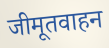
जीमूतवाहन